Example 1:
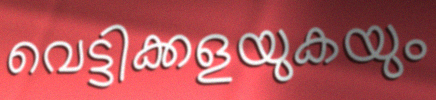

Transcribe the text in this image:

വെട്ടിക്കളയുകയും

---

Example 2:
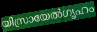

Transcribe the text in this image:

യിസ്രായേൽഗൃഹം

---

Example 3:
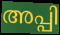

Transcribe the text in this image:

അപ്പി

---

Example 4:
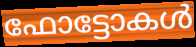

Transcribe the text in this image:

ഫോട്ടോകൾ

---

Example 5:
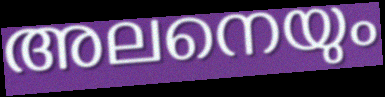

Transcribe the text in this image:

അലനെയും